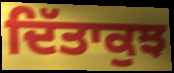
ਦਿੱਤਾਕੁਝ